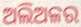
ଅଲିଅଳର